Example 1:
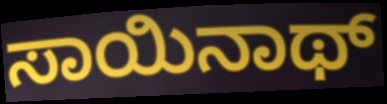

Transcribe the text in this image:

ಸಾಯಿನಾಥ್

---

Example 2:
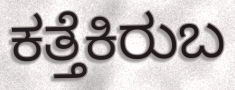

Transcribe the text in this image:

ಕತ್ತೆಕಿರುಬ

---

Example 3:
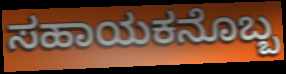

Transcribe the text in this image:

ಸಹಾಯಕನೊಬ್ಬ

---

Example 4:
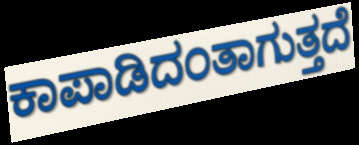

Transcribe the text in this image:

ಕಾಪಾಡಿದಂತಾಗುತ್ತದೆ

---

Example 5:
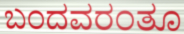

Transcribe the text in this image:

ಬಂದವರಂತೂ